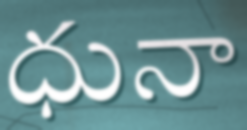
ధునా